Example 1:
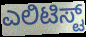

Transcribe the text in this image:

ಎಲಿಟಿಸ್ಟ್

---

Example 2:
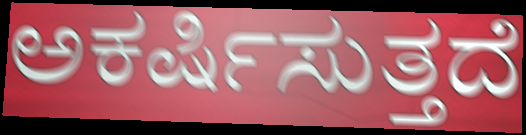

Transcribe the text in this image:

ಅಕರ್ಷಿಸುತ್ತದೆ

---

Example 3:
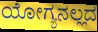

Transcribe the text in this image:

ಯೋಗ್ಯನಲ್ಲದ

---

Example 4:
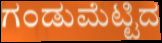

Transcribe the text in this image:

ಗಂಡುಮೆಟ್ಟಿದ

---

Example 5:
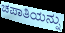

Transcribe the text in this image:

ಚಪಾತಿಯನ್ನು